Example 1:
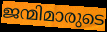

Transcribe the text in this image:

ജന്മിമാരുടെ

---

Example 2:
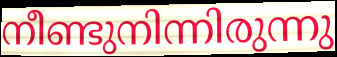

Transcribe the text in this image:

നീണ്ടുനിന്നിരുന്നു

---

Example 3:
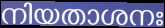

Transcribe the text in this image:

നിയതാശനഃ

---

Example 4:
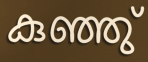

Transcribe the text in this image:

കുഞ്ഞു്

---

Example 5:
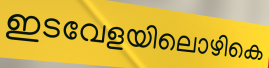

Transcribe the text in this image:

ഇടവേളയിലൊഴികെ